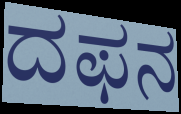
ದಫನ